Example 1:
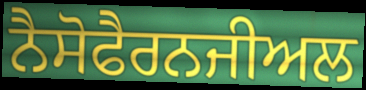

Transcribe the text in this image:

ਨੈਸੋਫੈਰਨਜੀਅਲ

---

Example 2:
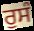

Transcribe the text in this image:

ਰੁਸੰ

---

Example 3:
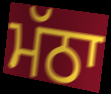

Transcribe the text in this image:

ਮੱਠਾ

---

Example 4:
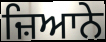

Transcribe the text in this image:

ਜ਼ਿਆਨੇ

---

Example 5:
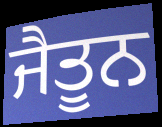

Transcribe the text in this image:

ਜੈਤੂਨ